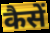
कैसें